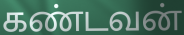
கண்டவன்